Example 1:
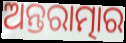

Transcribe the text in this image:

ଅନ୍ତରାତ୍ମାର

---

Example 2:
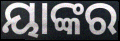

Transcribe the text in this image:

ୟାଙ୍କର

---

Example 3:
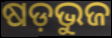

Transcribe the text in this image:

ଷଡ଼ଭୁଜ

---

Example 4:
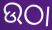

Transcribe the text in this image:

ଉଠା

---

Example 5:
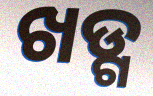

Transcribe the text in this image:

ଖଡ୍ଗ